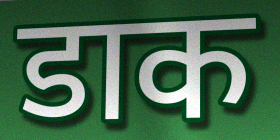
डाक